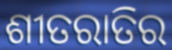
ଶୀତରାତିର